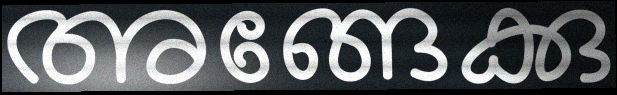
അങ്ങേക്കു